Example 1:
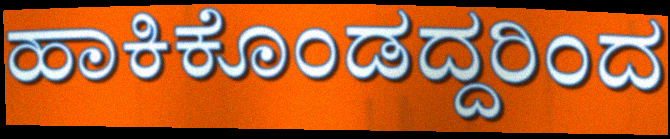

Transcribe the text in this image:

ಹಾಕಿಕೊಂಡದ್ದರಿಂದ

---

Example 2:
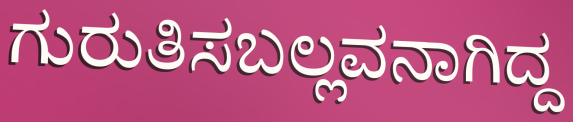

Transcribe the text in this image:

ಗುರುತಿಸಬಲ್ಲವನಾಗಿದ್ದ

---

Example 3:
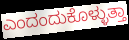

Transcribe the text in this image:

ಎಂದಂದುಕೊಳ್ಳುತ್ತಾ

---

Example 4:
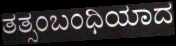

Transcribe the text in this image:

ತತ್ಸಂಬಂಧಿಯಾದ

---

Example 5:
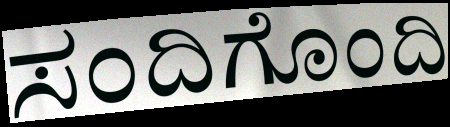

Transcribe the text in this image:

ಸಂದಿಗೊಂದಿ